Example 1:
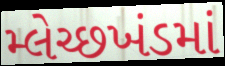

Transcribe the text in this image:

મ્લેચ્છખંડમાં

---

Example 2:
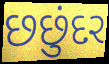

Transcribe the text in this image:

છછુંદર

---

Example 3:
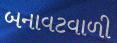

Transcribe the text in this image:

બનાવટવાળી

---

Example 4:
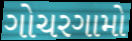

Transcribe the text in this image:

ગોચરગામો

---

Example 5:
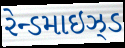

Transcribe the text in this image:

રેન્ડમાઇઝ્ડ